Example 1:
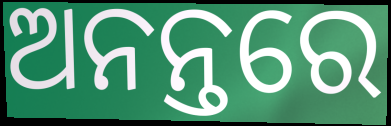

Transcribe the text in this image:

ଅନନ୍ତରେ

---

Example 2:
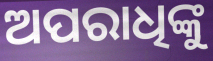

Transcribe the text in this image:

ଅପରାଧିଙ୍କୁ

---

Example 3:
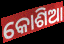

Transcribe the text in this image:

କୋଶିଆ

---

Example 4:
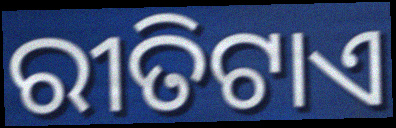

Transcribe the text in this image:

ରୀତିଟାଏ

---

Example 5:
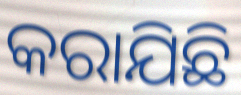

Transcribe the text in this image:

କରାଯିଛି